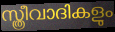
സ്ത്രീവാദികളും